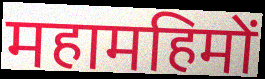
महामहिमों